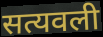
सत्यवली